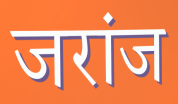
जरांज